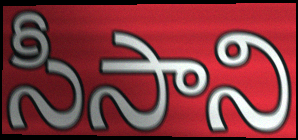
సీసాని